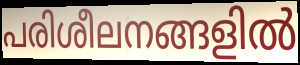
പരിശീലനങ്ങളിൽ